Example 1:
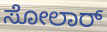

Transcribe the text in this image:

ಸೋಲಾರ್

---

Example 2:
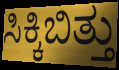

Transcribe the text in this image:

ಸಿಕ್ಕಿಬಿತ್ತು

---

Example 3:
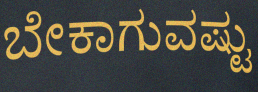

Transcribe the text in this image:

ಬೇಕಾಗುವಷ್ಟು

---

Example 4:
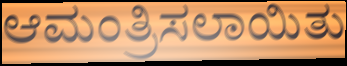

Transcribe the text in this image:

ಆಮಂತ್ರಿಸಲಾಯಿತು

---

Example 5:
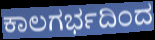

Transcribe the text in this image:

ಕಾಲಗರ್ಭದಿಂದ